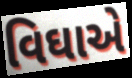
વિઘાએ